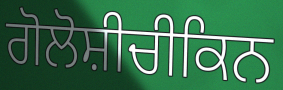
ਗੋਲੋਸ਼ੀਚੀਕਿਨ